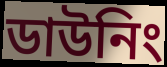
ডাউনিং